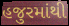
હજુરમાંથી